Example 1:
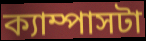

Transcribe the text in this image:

ক্যাম্পাসটা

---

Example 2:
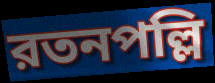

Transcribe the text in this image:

রতনপল্লি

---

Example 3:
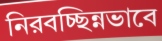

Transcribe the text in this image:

নিরবচ্ছিন্নভাবে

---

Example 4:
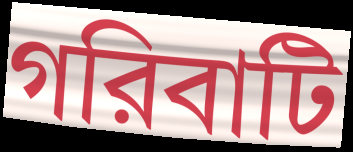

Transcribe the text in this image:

গরিবাটি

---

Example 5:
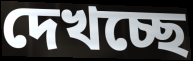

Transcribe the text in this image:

দেখচ্ছে